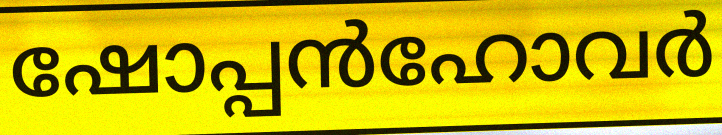
ഷോപ്പൻഹോവർ